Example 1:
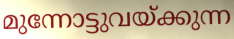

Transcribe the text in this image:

മുന്നോട്ടുവയ്ക്കുന്ന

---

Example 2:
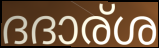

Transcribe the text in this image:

ദദാര്ശ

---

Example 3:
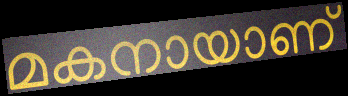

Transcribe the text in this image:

മകനായാണ്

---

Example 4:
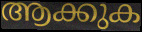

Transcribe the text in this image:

ആക്കുക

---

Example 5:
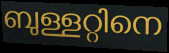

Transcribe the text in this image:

ബുള്ളറ്റിനെ